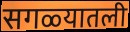
सगळ्यातली